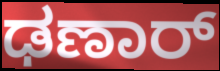
ಢಣಾರ್